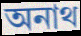
অনাথ